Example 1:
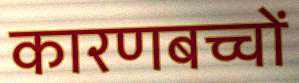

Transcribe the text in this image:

कारणबच्चों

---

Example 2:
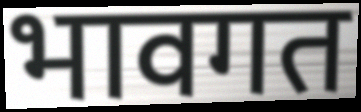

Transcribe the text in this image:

भावगत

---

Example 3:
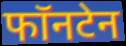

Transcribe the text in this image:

फॉनटेन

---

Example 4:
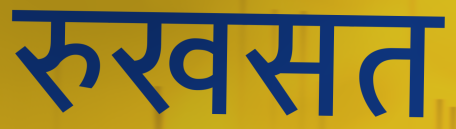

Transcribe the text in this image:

रुखसत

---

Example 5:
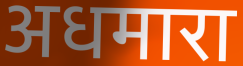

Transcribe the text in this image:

अधमारा